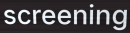
screening